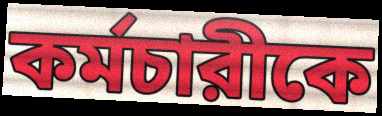
কর্মচারীকে